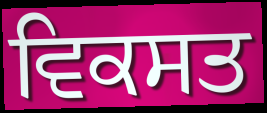
ਵਿਕਸਤ